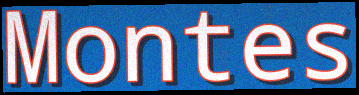
Montes